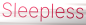
Sleepless